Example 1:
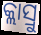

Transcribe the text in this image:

କ୍ଲାସ୍ରୁ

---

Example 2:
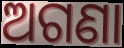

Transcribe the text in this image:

ଅଗଣା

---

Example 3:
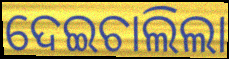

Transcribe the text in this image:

ଦେଇଚାଲିଲା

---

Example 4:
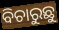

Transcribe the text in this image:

ବିଚାରୁଛୁ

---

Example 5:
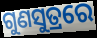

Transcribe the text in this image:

ଗୁଣସୁତ୍ରରେ